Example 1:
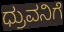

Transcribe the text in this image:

ಧ್ರುವನಿಗೆ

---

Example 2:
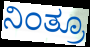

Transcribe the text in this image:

ನಿಂತ್ರೂ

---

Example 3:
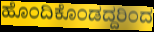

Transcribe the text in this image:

ಹೊಂದಿಕೊಂಡದ್ದರಿಂದ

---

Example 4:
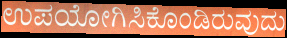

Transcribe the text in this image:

ಉಪಯೋಗಿಸಿಕೊಂಡಿರುವುದು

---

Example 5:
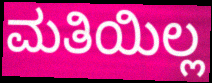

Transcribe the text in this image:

ಮತಿಯಿಲ್ಲ